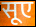
सूए